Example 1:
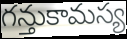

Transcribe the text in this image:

గన్తుకామస్య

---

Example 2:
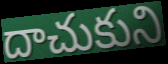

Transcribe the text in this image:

దాచుకుని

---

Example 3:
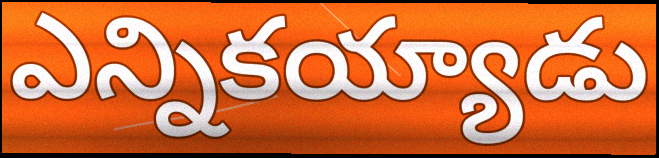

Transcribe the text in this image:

ఎన్నికయ్యాడు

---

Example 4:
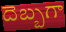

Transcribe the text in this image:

దెబ్బగా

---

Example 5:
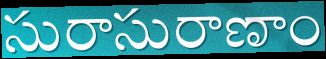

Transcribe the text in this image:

సురాసురాణాం